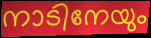
നാടിനേയും